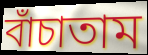
বাঁচাতাম